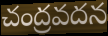
చంద్రవదన